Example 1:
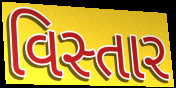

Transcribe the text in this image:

વિસ્તાર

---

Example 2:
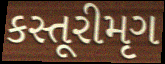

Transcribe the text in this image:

કસ્તૂરીમૃગ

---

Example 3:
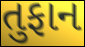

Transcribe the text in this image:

તુફાન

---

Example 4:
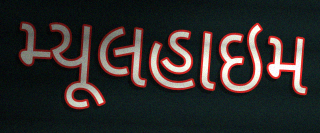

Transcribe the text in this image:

મ્યૂલહાઇમ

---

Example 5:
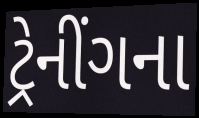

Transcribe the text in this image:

ટ્રેનીંગના